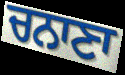
ਚਨਾਣਾ